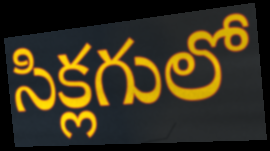
సిక్లగులో